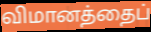
விமானத்தைப்